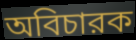
অবিচারক